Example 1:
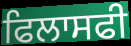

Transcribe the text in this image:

ਫਿਲਾਸਫੀ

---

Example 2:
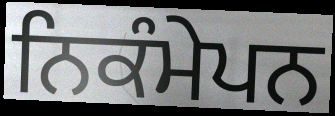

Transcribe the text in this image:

ਨਿਕੰਮੇਪਨ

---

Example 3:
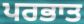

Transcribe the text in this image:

ਪਰਭਾਤ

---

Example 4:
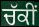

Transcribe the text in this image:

ਚੱਕੀਂ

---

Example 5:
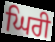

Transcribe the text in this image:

ਘਿਰੀ